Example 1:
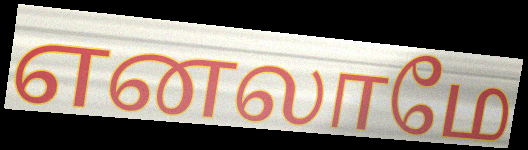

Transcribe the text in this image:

எனலாமே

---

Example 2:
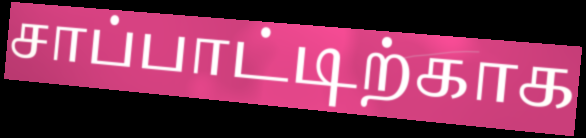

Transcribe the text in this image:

சாப்பாட்டிற்காக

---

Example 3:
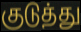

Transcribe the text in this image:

குடுத்து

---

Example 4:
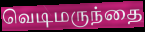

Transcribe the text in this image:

வெடிமருந்தை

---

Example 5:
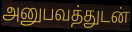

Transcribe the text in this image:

அனுபவத்துடன்